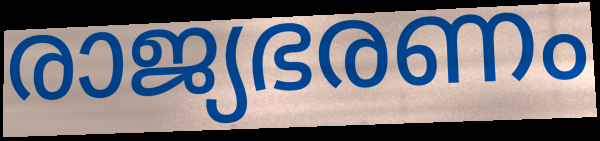
രാജ്യഭരണം